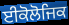
ਈਕੋਲੋਜਿਕ